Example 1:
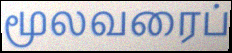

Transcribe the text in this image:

மூலவரைப்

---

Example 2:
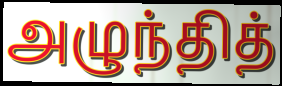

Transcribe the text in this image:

அழுந்தித்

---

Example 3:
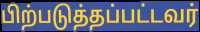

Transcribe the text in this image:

பிற்படுத்தப்பட்டவர்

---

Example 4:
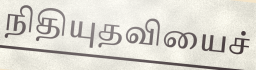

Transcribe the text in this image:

நிதியுதவியைச்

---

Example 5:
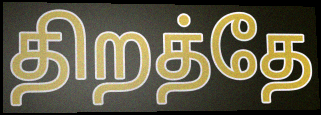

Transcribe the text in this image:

திறத்தே